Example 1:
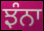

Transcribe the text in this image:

ਝੰਨਾ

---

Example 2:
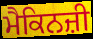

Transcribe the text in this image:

ਮੈਕਿਨਜ਼ੀ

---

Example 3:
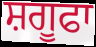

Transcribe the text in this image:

ਸ਼ਗੂਫਾ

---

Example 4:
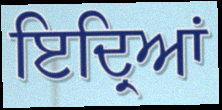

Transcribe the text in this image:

ਇਦ੍ਰਿਆਂ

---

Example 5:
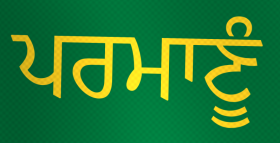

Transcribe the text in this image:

ਪਰਮਾਣੂੰ